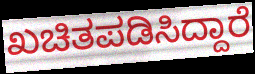
ಖಚಿತಪಡಿಸಿದ್ದಾರೆ